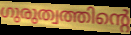
ഗുരുത്വത്തിന്റെ